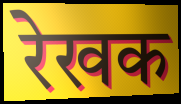
रेखक